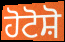
ਹੋਟੋਸ਼ੋ